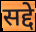
सद्दे